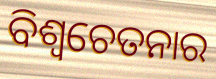
ବିଶ୍ଵଚେତନାର